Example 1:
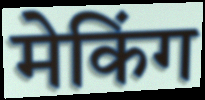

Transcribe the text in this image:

मेकिंग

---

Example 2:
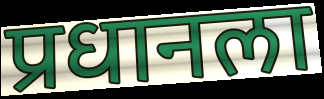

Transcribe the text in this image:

प्रधानला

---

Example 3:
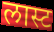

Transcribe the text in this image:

लास्ट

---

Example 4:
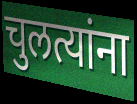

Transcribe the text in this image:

चुलत्यांना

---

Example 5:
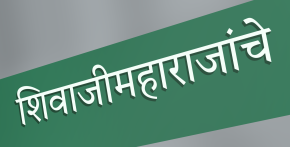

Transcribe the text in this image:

शिवाजीमहाराजांचे